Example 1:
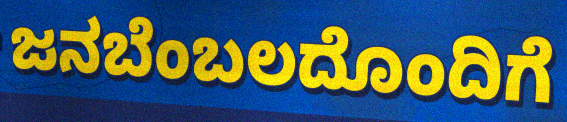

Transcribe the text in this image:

ಜನಬೆಂಬಲದೊಂದಿಗೆ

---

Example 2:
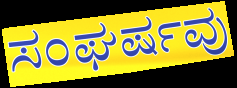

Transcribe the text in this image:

ಸಂಘರ್ಷವು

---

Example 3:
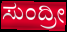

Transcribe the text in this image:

ಸುಂದ್ರೀ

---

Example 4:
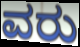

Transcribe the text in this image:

ವರು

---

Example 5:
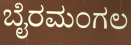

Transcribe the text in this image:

ಬೈರಮಂಗಲ